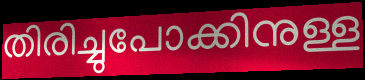
തിരിച്ചുപോക്കിനുള്ള